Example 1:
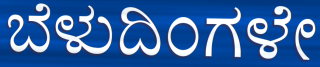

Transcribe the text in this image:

ಬೆಳುದಿಂಗಳೇ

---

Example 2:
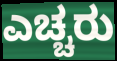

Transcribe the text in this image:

ಎಚ್ಚರು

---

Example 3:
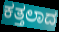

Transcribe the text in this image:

ಕತ್ತಲಾದ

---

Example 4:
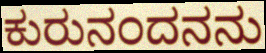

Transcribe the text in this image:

ಕುರುನಂದನನು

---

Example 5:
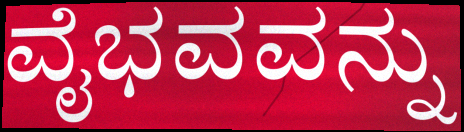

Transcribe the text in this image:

ವೈಭವವನ್ನು